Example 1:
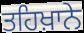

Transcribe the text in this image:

ਤਹਿਖ਼ਾਨੇ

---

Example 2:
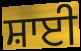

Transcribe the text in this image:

ਸ਼ਾਈ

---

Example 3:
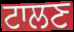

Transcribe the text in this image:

ਟਾਲਣ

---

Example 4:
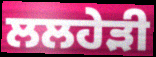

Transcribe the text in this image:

ਲਲਹੇੜੀ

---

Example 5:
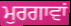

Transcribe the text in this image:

ਮੁਰਗਾਵਾਂ